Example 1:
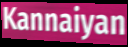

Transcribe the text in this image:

Kannaiyan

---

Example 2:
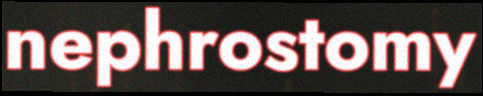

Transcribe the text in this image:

nephrostomy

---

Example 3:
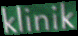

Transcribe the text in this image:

klinik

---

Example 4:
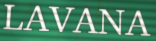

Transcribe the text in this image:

LAVANA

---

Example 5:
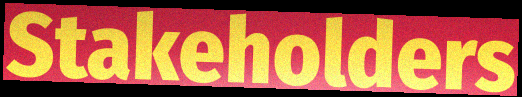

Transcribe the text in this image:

Stakeholders